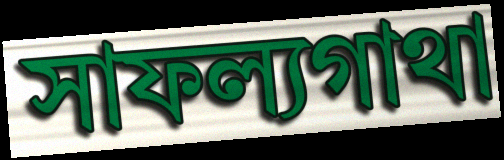
সাফল্যগাথা